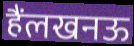
हैंलखनऊ